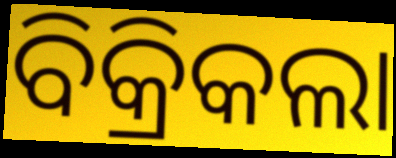
ବିକ୍ରିକଲା